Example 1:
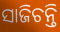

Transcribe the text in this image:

ସାଜିଚନ୍ତି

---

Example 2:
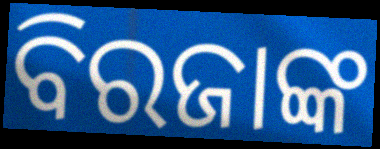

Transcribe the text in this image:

ବିରଜାଙ୍କ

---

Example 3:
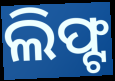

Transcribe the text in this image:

ଲିଫ୍ଟ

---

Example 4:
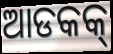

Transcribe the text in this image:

ଆଡକକ୍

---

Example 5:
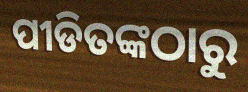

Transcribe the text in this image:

ପୀଡିତଙ୍କଠାରୁ